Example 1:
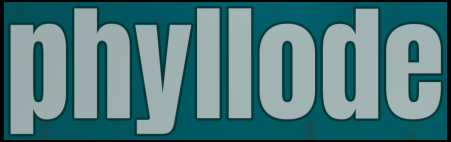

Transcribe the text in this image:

phyllode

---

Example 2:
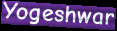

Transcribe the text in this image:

Yogeshwar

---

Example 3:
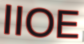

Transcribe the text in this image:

IIOE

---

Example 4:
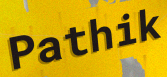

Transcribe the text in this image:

Pathik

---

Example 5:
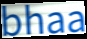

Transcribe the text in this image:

bhaa